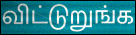
விட்டுறுங்க